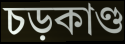
চড়কাণ্ড